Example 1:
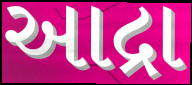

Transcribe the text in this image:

આદ્રા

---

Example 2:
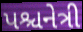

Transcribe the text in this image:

પશ્ચનેત્રી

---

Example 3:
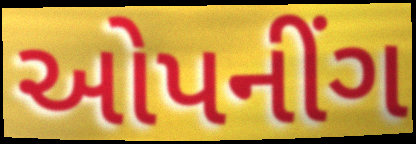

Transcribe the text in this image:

ઓપનીંગ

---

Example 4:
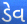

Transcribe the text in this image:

ડેવ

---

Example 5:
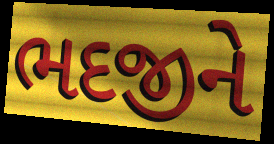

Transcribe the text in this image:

ભદજીને